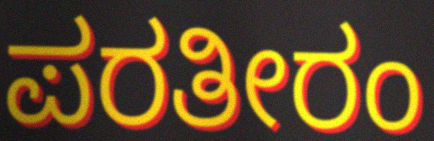
ಪರತೀರಂ